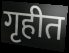
गृहीत